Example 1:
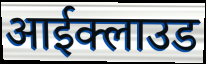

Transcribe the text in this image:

आईक्लाउड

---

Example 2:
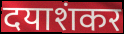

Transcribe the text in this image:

दयाशंकर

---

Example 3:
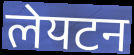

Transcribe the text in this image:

लेयटन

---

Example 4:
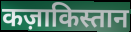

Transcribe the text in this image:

कज़ाकिस्तान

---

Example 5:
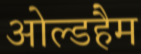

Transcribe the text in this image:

ओल्डहैम